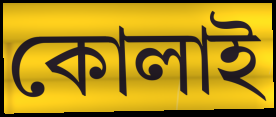
কোলাই